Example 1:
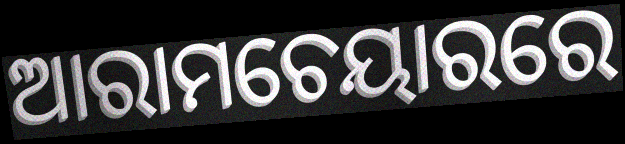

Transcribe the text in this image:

ଆରାମଚେୟାରରେ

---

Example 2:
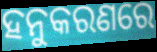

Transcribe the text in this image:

ହନୁକରଣରେ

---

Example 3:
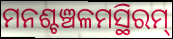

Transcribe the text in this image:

ମନଶ୍ଚଞ୍ଚଳମସ୍ଥିରମ୍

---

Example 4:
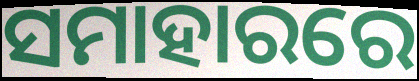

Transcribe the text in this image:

ସମାହାରରେ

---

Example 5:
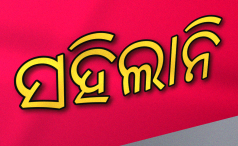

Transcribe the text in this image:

ସହିଲାନି